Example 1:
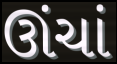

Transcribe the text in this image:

ઊંચાં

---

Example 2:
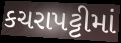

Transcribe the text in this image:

કચરાપટ્ટીમાં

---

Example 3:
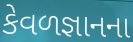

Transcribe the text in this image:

કેવળજ્ઞાનના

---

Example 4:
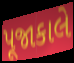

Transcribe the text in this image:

પૂજાકાલે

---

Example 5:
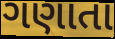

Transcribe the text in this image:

ગણાતા